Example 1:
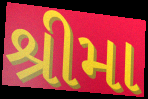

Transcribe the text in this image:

શ્રીમા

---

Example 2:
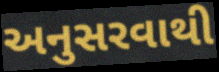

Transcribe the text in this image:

અનુસરવાથી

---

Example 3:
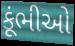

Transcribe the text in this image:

કૂંભીઓ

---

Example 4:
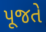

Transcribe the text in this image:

પૂજતે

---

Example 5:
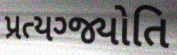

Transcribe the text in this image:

પ્રત્યગ્જ્યોતિ